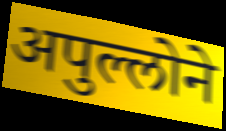
अपुल्लोने